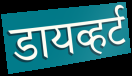
डायव्हर्ट